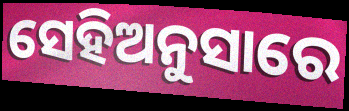
ସେହିଅନୁସାରେ